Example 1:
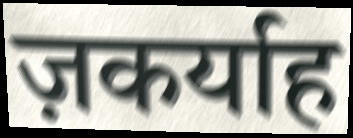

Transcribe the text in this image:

ज़कर्याह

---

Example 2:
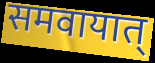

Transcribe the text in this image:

समवायात्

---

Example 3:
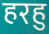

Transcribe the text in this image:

हरहु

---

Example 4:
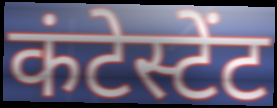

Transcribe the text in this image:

कंटेस्टेंट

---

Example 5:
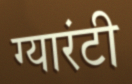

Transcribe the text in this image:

ग्‍यारंटी